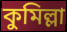
কুমিল্লা